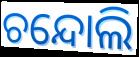
ଚନ୍ଦୋଲି